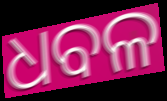
ଧବଳ